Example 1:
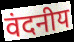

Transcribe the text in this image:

वंदनीय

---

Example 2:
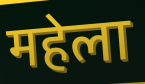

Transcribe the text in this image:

महेला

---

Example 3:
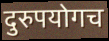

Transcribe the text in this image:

दुरुपयोगच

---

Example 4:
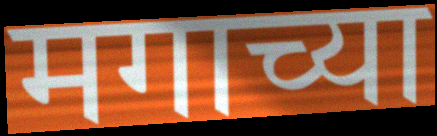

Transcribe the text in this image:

मगाच्या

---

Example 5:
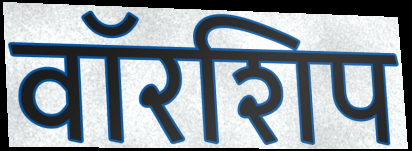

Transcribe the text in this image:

वॉरशिप